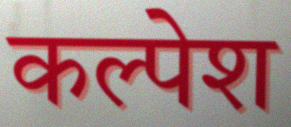
कल्पेश